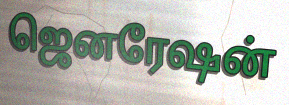
ஜெனரேஷன்